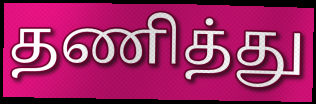
தணித்து